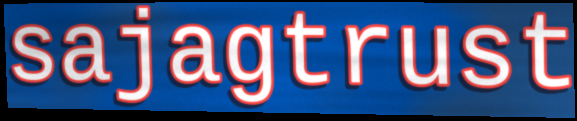
sajagtrust